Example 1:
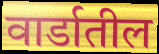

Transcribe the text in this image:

वार्डातील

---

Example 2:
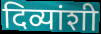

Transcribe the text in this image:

दिव्यांशी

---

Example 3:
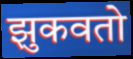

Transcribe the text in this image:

झुकवतो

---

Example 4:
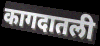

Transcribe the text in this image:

कागदातली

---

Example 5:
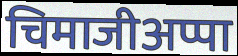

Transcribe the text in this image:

चिमाजीअप्पा